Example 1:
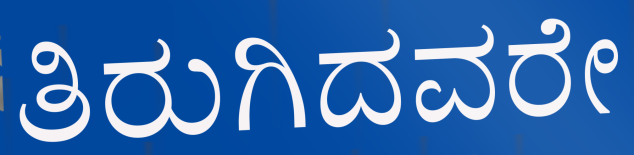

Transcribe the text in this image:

ತಿರುಗಿದವರೇ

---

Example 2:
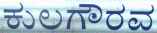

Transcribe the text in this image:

ಕುಲಗೌರವ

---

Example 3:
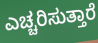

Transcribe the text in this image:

ಎಚ್ಚರಿಸುತ್ತಾರೆ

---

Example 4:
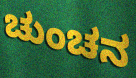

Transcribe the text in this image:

ಚುಂಚನ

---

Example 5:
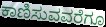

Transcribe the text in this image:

ಕಾಣಿಸುವವರೆಗೂ